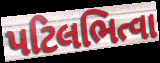
પટિલભિત્વા